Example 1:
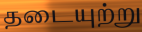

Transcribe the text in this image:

தடையுற்று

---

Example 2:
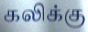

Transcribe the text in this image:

கலிக்கு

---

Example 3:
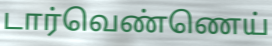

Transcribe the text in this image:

டார்வெண்ணெய்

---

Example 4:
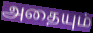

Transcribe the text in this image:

அதையும்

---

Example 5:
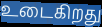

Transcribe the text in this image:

உடைகிறது